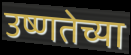
उष्णतेच्या